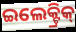
ଇଲେକ୍ଟ୍ରିକ୍